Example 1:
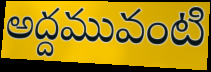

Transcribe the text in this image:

అద్దమువంటి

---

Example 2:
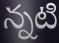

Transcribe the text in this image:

న్నటి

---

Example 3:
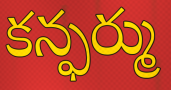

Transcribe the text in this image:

కన్ఫర్ము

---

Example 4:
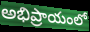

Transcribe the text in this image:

అభిప్రాయంలో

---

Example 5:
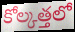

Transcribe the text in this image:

కోల్కత్తలో